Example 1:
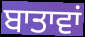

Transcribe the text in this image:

ਬਾਤਾਵਾਂ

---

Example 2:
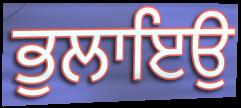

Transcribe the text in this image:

ਭੁਲਾਇਉ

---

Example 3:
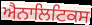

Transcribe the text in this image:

ਐਨਾਲਿਟਿਕਸ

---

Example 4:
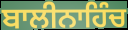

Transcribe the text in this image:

ਬਾਲੀਨਾਹਿੰਚ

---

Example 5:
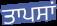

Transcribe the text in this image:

ਤਾਪਸਾਂ